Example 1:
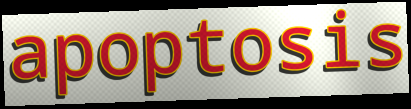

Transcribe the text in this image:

apoptosis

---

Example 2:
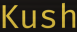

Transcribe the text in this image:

Kush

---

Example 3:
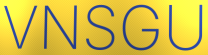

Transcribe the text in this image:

VNSGU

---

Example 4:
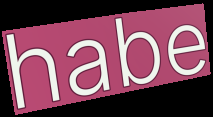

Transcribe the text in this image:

habe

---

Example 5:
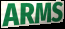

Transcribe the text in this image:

ARMS